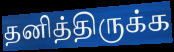
தனித்திருக்க